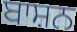
ਬਾਸ਼ਨ